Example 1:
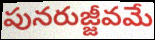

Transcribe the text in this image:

పునరుజ్జీవమే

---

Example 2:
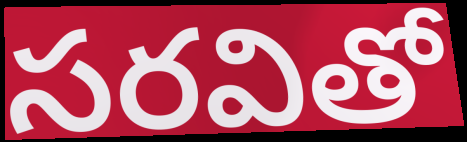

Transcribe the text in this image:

సరవితో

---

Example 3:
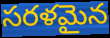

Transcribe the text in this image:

సరళమైన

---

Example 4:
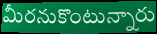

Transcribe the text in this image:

మీరనుకొంటున్నారు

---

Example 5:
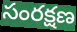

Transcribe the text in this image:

సంరక్షణ